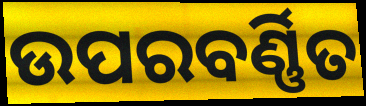
ଉପରବର୍ଣ୍ଣିତ